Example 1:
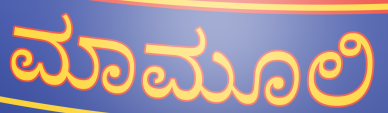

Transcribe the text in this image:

ಮಾಮೂಲಿ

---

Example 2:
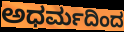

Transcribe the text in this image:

ಅಧರ್ಮದಿಂದ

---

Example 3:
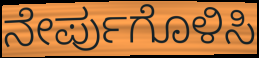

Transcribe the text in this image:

ನೇರ್ಪುಗೊಳಿಸಿ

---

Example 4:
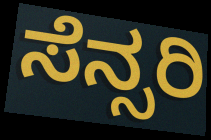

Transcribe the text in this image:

ಸೆನ್ಸರಿ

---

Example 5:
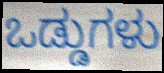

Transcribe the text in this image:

ಒಡ್ಡುಗಳು